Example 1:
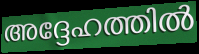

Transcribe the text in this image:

അദ്ദേഹത്തിൽ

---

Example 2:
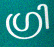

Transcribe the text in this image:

ഗ്രി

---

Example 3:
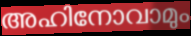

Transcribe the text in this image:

അഹിനോവാമും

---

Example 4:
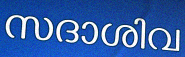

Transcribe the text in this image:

സദാശിവ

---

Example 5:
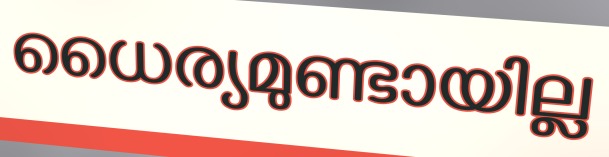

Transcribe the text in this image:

ധൈര്യമുണ്ടായില്ല